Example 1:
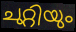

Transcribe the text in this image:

ചുറ്റിയും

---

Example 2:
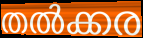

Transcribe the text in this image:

തൽക്കര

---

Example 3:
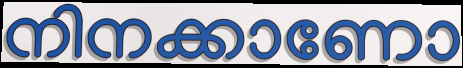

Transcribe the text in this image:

നിനക്കാണോ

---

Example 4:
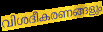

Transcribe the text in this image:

വിശദീകരണങ്ങളും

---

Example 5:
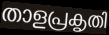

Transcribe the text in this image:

താളപ്രകൃതി